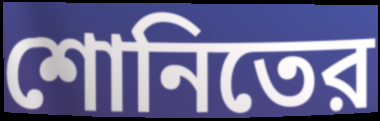
শোনিতের